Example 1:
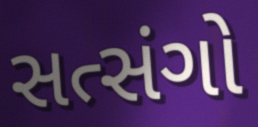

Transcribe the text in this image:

સત્સંગો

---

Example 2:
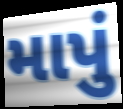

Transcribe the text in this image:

માપું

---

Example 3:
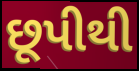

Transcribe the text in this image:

છૂપીથી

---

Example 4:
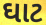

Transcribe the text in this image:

ઘાટ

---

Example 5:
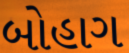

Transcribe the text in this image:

બોહાગ